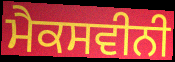
ਮੈਕਸਵੀਨੀ